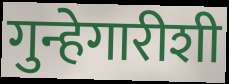
गुन्हेगारीशी